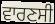
ਵਾਰਣਸੀ